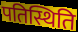
पतिस्थिति